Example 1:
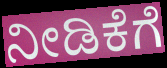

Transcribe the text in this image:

ನೀಡಿಕೆಗೆ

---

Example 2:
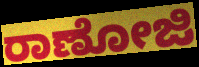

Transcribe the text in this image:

ರಾಣೋಜಿ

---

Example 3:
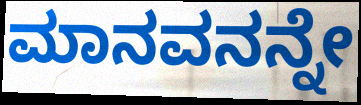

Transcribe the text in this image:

ಮಾನವನನ್ನೇ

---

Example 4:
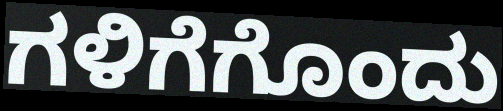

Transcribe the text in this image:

ಗಳಿಗೆಗೊಂದು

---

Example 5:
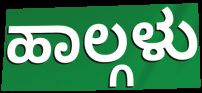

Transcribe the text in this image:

ಹಾಲ್ಗಳು